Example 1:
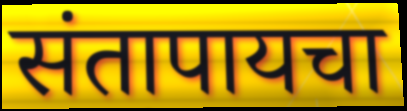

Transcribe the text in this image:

संतापायचा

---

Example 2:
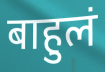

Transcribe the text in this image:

बाहुलं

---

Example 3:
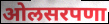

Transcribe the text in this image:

ओलसरपणा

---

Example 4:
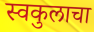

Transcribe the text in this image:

स्वकुलाचा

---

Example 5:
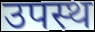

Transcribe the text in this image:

उपस्थ